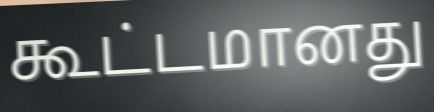
கூட்டமானது